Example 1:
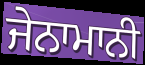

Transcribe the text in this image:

ਜੇਨਾਮਾਨੀ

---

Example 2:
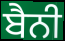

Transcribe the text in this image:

ਬੈਨੀ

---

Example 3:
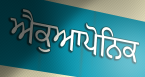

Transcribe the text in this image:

ਐਕੁਆਪੋਨਿਕ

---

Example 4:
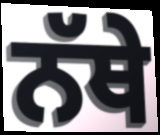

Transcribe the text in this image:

ਨੱਥੇ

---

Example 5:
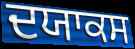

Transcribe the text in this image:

ਦਯਾਕਸ